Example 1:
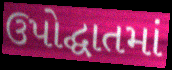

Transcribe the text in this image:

ઉપોદ્ઘાતમાં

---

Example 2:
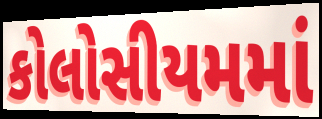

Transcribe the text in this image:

કોલોસીયમમાં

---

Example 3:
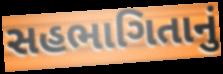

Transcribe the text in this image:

સહભાગિતાનું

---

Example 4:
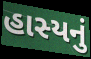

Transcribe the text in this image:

હાસ્યનું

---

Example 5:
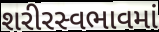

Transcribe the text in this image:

શરીરસ્વભાવમાં